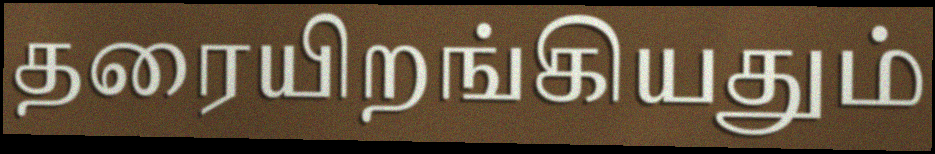
தரையிறங்கியதும்